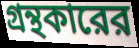
গ্রন্থকারের